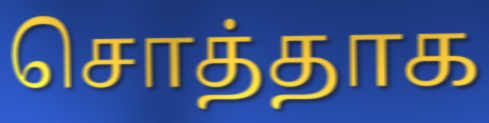
சொத்தாக